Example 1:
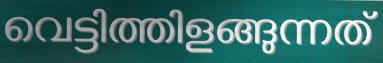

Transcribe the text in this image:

വെട്ടിത്തിളങ്ങുന്നത്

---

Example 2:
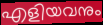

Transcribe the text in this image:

എളിയവനും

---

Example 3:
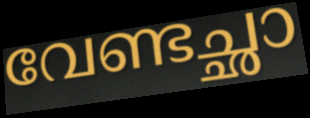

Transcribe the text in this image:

വേണ്ടച്ഛാ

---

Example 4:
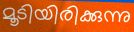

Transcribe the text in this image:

മൂടിയിരിക്കുന്നു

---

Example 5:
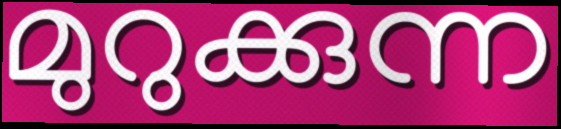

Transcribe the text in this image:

മുറുക്കുന്ന